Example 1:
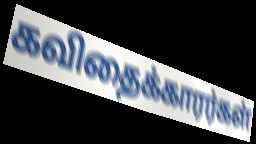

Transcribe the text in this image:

கவிதைக்காரர்கள்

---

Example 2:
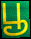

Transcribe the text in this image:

பூ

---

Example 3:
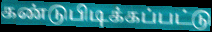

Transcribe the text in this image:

கண்டுபிடிக்கப்பட்டு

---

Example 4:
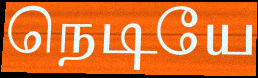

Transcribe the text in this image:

நெடியே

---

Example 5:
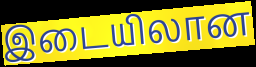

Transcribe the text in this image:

இடையிலான